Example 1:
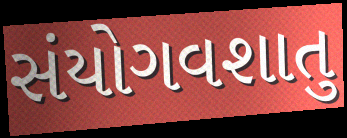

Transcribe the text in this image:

સંયોગવશાતુ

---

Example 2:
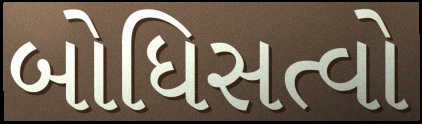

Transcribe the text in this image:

બોધિસત્વો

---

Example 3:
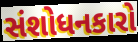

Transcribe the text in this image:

સંશોધનકારો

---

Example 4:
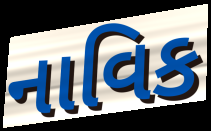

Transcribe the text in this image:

નાવિક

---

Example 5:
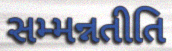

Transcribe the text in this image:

સમ્મન્નતીતિ